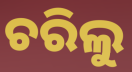
ଚରିଲୁ